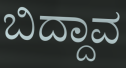
ಬಿದ್ದಾವ